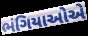
ભંગિયાઓએ